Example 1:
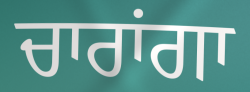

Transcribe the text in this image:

ਚਾਰਾਂਗਾ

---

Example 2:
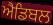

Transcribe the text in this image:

ਐਡਿਬਲ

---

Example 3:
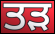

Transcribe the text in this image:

ਤੜ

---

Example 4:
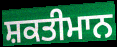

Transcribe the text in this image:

ਸ਼ਕਤੀਮਾਨ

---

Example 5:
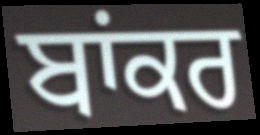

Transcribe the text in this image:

ਬਾਂਕਰ